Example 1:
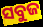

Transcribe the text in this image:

ସବୁଜ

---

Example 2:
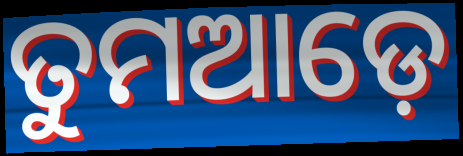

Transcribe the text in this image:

ତୁମଆଡ଼େ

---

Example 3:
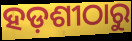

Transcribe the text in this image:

ହଡ଼ଶୀଠାରୁ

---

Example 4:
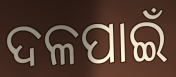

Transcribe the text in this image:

ଦଳପାଇଁ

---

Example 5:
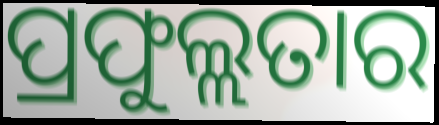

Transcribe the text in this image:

ପ୍ରଫୁଲ୍ଲତାର